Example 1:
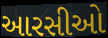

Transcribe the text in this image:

આરસીઓ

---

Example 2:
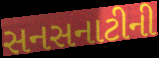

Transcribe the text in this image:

સનસનાટીની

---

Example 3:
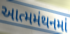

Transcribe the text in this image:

આત્મમંથનમાં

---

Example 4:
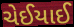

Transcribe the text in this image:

ચેઈયાઈ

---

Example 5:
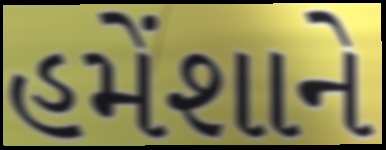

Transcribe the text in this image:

હમેંશાને